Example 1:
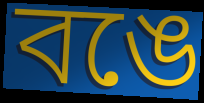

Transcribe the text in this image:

বঙে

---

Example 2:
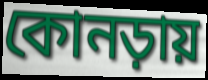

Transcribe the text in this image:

কোনড়ায়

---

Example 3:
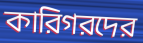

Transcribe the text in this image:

কারিগরদের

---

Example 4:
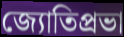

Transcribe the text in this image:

জ্যোতিপ্রভা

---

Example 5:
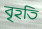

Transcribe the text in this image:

বৃহতি